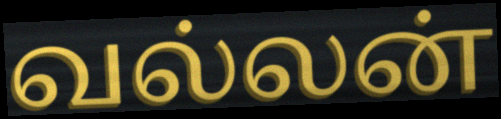
வல்லன்